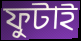
ফুটাই